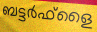
ബട്ടർഫ്ളൈ